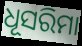
ଧୂସରିମା